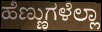
ಹೆಣ್ಣುಗಳೆಲ್ಲಾ